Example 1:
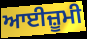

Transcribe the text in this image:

ਆਈਜ਼ੂਮੀ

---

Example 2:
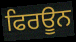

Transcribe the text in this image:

ਫਿਰਊਨ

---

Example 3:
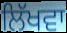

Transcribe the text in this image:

ਲਿੱਖਵਾ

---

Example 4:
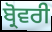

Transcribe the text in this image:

ਬ੍ਰੋਵਰੀ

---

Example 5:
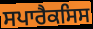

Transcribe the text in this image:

ਸਪਾਰੈਕਸਿਸ